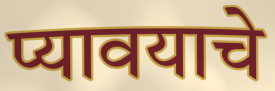
प्यावयाचे